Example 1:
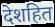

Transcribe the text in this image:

देशहित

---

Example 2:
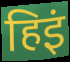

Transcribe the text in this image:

हिइं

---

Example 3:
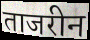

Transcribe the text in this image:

ताजरीन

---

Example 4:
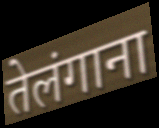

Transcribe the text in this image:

तेलंगाना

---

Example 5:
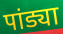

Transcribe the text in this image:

पांड्या